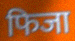
फिजा